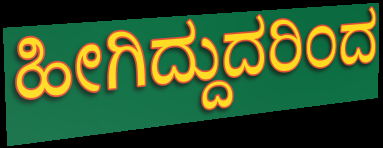
ಹೀಗಿದ್ದುದರಿಂದ